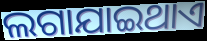
ଲଗାଯାଇଥାଏ